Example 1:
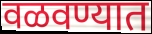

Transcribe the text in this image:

वळवण्यात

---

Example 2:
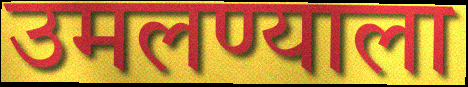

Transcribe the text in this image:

उमलण्याला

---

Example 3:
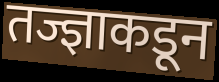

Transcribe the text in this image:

तज्ज्ञाकडून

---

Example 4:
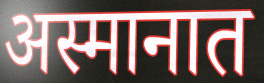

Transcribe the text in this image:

अस्मानात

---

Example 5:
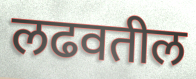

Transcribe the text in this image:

लढवतील